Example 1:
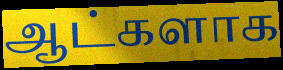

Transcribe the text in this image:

ஆட்களாக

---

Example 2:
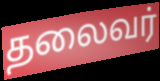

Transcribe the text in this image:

தலைவர்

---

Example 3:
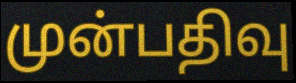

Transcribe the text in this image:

முன்பதிவு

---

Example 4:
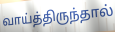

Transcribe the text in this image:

வாய்த்திருந்தால்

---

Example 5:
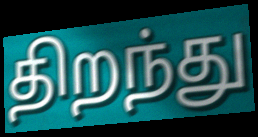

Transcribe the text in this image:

திறந்து